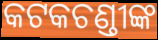
କଟକଚଣ୍ଡୀଙ୍କ